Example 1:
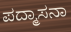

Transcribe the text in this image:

ಪದ್ಮಾಸನಾ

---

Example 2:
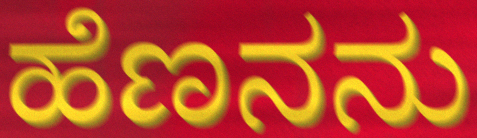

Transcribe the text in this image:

ಹೆಣನನು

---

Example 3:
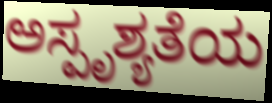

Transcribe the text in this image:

ಅಸ್ಪೃಶ್ಯತೆಯ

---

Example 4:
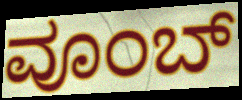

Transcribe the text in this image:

ವೂಂಬ್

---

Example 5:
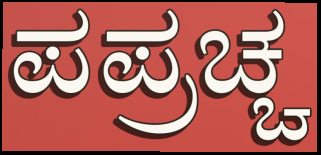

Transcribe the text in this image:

ಪಪ್ರಚ್ಚ